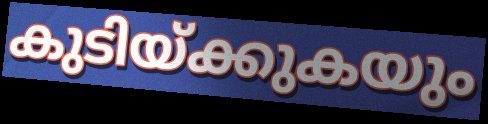
കുടിയ്ക്കുകയും